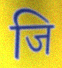
जि